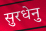
सुरधेनु